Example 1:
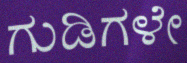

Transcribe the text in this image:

ಗುಡಿಗಳೇ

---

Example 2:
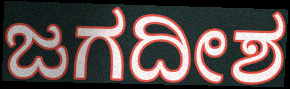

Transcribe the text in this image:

ಜಗದೀಶ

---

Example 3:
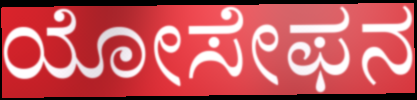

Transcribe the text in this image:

ಯೋಸೇಫನ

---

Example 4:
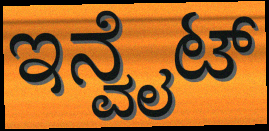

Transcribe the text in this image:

ಇನ್ವೈಟ್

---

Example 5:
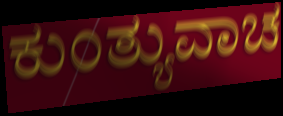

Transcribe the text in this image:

ಕುಂತ್ಯುವಾಚ